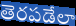
తెరపడేలా